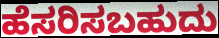
ಹೆಸರಿಸಬಹುದು